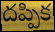
దప్పిక